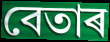
বেতাৰ